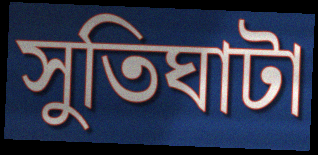
সুতিঘাটা